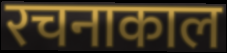
रचनाकाल